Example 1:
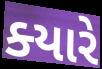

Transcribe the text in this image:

ક્‍યારે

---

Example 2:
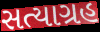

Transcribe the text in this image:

સત્‍યાગ્રહ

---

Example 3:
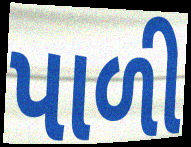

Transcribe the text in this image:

પાળી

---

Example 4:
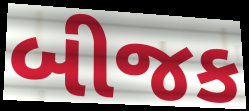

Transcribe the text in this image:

બીજક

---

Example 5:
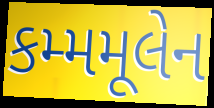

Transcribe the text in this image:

કમ્મમૂલેન